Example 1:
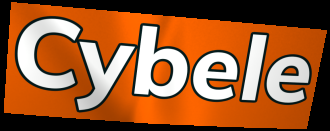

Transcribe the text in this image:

Cybele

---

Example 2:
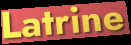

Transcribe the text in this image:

Latrine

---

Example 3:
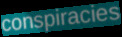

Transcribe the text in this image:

conspiracies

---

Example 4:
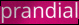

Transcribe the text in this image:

prandial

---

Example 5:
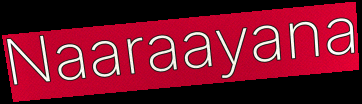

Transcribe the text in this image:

Naaraayana